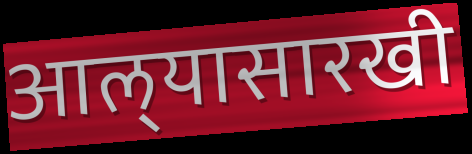
आल्यासारखी